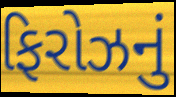
ફિરોઝનું